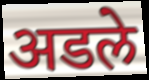
अडले